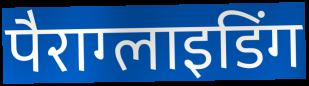
पैराग्लाइडिंग